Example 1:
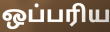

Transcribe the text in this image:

ஒப்பரிய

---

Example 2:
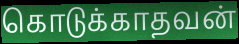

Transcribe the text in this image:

கொடுக்காதவன்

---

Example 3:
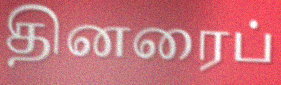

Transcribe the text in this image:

தினரைப்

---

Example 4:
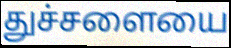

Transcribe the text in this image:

துச்சளையை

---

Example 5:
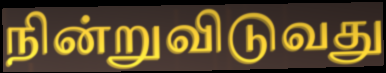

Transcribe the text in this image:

நின்றுவிடுவது